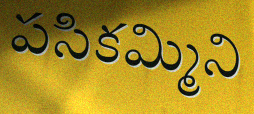
పసికమ్మిని